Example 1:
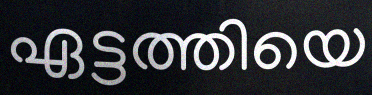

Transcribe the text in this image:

ഏട്ടത്തിയെ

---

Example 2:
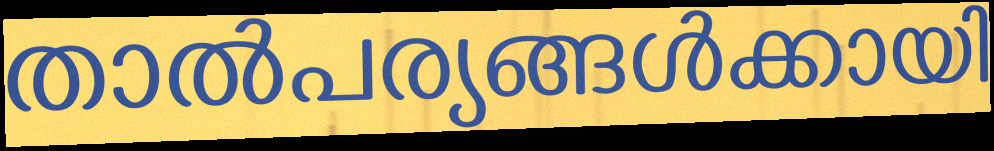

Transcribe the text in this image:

താൽപര്യങ്ങൾക്കായി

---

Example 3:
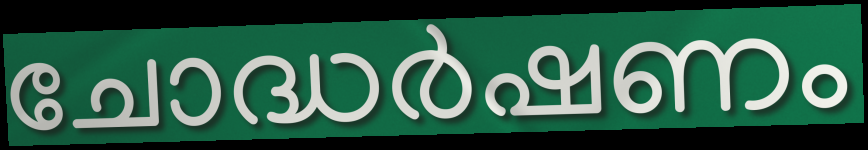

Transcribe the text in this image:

ചോദ്ധർഷണം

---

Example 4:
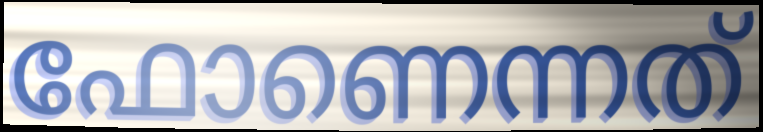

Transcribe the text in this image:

ഫോണെന്നത്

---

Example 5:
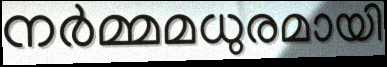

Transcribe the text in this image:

നർമ്മമധുരമായി